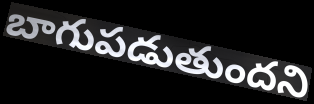
బాగుపడుతుందని